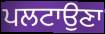
ਪਲਟਾਉਣਾ